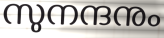
സുനന്ദനും